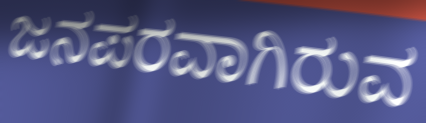
ಜನಪರವಾಗಿರುವ